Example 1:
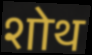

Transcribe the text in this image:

शोथ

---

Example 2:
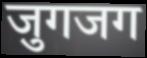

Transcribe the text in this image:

जुगजग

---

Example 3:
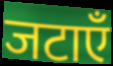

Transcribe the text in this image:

जटाएँ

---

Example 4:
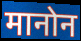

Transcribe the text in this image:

मानोन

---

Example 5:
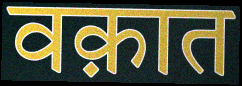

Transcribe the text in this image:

वक़ात